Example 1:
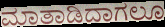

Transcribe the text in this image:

ಮಾತಾಡಿದಾಗಲೂ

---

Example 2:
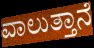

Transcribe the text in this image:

ವಾಲುತ್ತಾನೆ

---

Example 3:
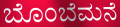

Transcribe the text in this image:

ಬೊಂಬೆಮನೆ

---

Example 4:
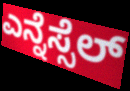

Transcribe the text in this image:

ಎನ್ನೆಸ್ಸೆಲ್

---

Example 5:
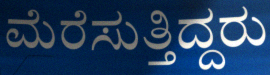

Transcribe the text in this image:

ಮೆರೆಸುತ್ತಿದ್ದರು